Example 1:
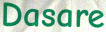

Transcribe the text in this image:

Dasare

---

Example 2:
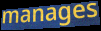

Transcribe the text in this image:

manages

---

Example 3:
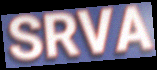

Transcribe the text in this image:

SRVA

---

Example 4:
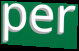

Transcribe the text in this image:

per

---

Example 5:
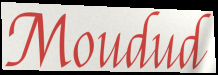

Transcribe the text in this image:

Moudud